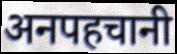
अनपहचानी